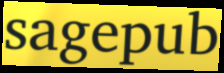
sagepub